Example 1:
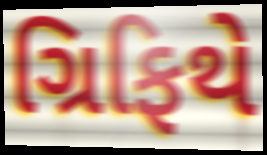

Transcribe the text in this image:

ગ્રિફિથે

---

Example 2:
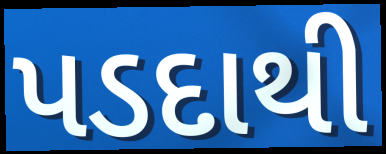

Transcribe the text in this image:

પડદાથી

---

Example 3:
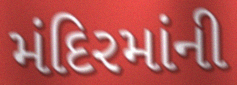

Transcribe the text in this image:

મંદિરમાંની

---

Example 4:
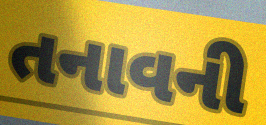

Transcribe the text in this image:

તનાવની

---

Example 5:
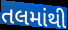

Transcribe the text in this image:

તલમાંથી